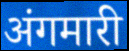
अंगमारी